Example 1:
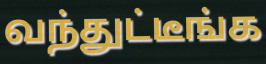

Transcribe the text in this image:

வந்துட்டீங்க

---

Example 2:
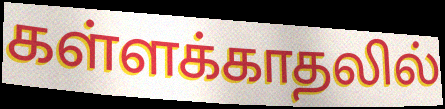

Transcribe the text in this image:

கள்ளக்காதலில்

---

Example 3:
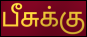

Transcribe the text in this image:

பீசுக்கு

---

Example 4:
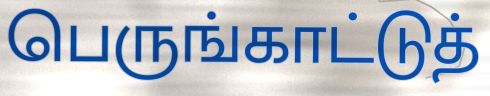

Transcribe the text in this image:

பெருங்காட்டுத்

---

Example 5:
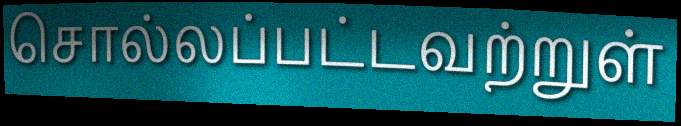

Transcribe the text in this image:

சொல்லப்பட்டவற்றுள்